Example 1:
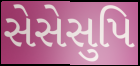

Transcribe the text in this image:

સેસેસુપિ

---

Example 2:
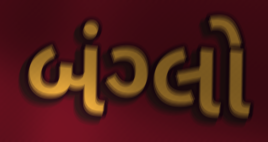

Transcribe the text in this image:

બંગ્લો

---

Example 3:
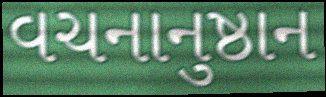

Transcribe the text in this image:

વચનાનુષ્ઠાન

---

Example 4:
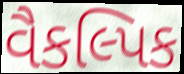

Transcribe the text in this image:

વૈકલ્પિક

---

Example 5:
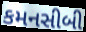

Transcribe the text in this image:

કમનસીબી